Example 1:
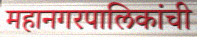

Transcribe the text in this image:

महानगरपालिकांची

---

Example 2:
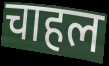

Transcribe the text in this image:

चाहल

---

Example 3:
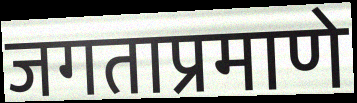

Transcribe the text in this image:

जगताप्रमाणे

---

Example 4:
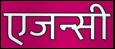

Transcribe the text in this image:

एजन्सी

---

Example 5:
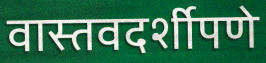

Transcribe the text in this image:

वास्तवदर्शीपणे